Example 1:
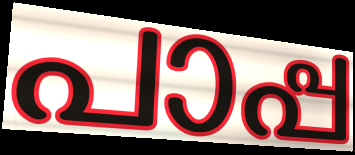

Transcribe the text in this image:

പാപ്പ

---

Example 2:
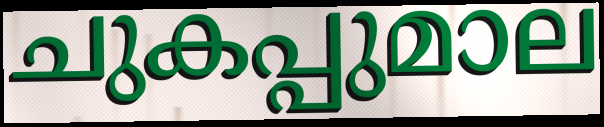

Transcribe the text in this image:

ചുകപ്പുമാല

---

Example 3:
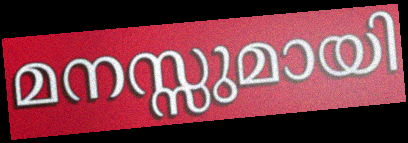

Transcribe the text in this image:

മനസ്സുമായി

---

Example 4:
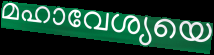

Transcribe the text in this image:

മഹാവേശ്യയെ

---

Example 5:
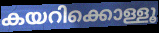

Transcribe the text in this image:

കയറിക്കൊള്ളൂ